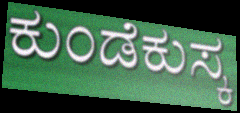
ಕುಂಡೆಕುಸ್ಕ